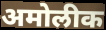
अमोलीक